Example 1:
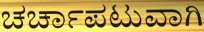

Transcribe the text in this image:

ಚರ್ಚಾಪಟುವಾಗಿ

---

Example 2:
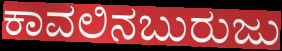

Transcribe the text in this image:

ಕಾವಲಿನಬುರುಜು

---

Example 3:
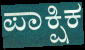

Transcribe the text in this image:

ಪಾಕ್ಷಿಕ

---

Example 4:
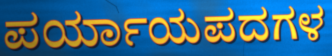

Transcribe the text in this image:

ಪರ್ಯಾಯಪದಗಳ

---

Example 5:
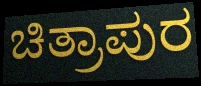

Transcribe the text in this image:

ಚಿತ್ರಾಪುರ